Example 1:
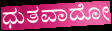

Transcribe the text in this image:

ಧುತವಾದೋ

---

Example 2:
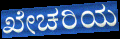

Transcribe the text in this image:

ಖೇಚರಿಯ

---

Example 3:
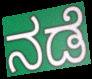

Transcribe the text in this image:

ನಡೆ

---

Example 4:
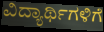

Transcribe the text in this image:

ವಿದ್ಯಾರ್ಥಿಗಳಿಗೆ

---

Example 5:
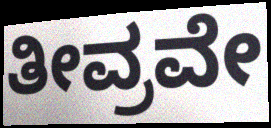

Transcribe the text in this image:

ತೀವ್ರವೇ